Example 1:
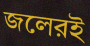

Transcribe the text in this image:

জলেরই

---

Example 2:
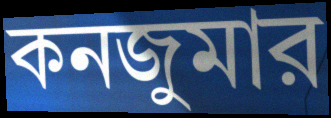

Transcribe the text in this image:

কনজুমার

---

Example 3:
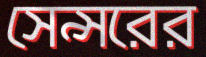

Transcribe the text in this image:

সেন্সরের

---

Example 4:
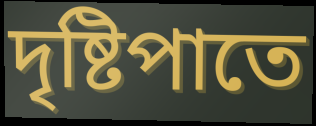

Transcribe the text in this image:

দৃষ্টিপাতে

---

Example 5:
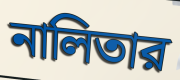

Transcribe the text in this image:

নালিতার